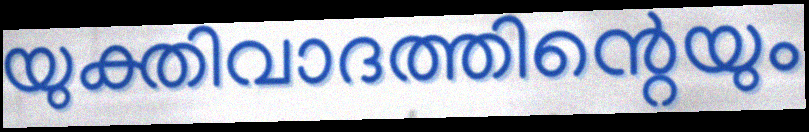
യുക്തിവാദത്തിന്റെയും